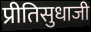
प्रीतिसुधाजी